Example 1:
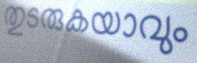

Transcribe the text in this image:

തുടരുകയാവും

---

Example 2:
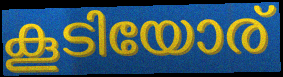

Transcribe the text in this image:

കൂടിയോര്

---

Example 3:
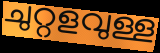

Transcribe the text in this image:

ചുറ്റളവുള്ള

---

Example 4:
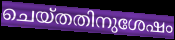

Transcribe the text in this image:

ചെയ്തതിനുശേഷം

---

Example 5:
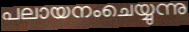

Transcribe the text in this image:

പലായനംചെയ്യുന്നു